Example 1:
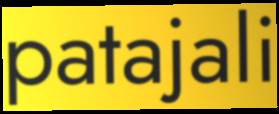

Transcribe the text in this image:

patajali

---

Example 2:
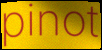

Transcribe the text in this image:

pinot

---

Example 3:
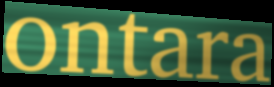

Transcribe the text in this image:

ontara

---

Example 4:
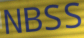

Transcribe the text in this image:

NBSS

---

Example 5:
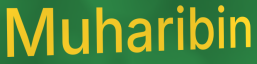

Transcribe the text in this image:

Muharibin